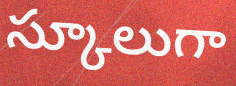
స్కూలుగా